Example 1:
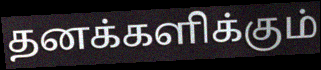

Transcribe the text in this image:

தனக்களிக்கும்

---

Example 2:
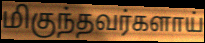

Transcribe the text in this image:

மிகுந்தவர்களாய்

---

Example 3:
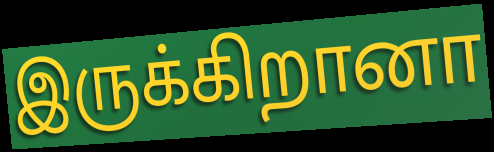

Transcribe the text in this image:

இருக்கிறானா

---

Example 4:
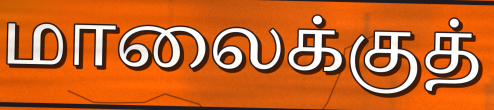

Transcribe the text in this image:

மாலைக்குத்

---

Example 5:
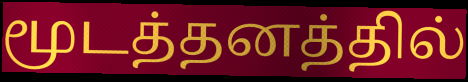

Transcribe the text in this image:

மூடத்தனத்தில்